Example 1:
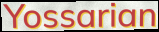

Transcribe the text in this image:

Yossarian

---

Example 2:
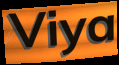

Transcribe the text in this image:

Viya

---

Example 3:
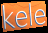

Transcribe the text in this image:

kele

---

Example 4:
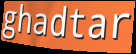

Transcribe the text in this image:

ghadtar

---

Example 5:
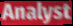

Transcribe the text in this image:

Analyst